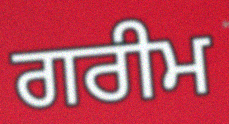
ਗਰੀਮ